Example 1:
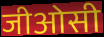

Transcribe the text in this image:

जीओसी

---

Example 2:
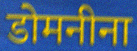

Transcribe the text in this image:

डोमनीना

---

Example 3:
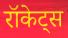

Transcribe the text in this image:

रॉकेट्स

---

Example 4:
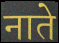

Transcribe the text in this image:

नाते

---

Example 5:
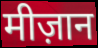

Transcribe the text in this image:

मीज़ान